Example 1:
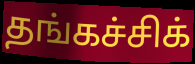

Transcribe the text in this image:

தங்கச்சிக்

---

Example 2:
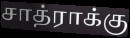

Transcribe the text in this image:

சாத்ராக்கு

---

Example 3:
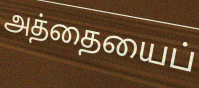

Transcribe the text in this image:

அத்தையைப்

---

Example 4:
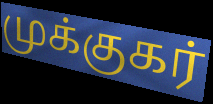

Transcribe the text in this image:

முக்குகர்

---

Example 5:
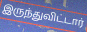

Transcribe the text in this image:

இருந்துவிட்டார்